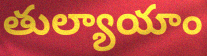
తుల్యాయాం